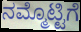
ನಮ್ಮೊಟ್ಟಿಗೆ